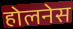
होलनेस